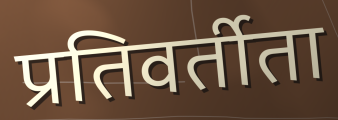
प्रतिवर्तीता